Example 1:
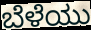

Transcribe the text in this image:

ಬೆಳೆಯು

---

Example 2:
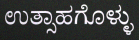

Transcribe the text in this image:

ಉತ್ಸಾಹಗೊಳ್ಳು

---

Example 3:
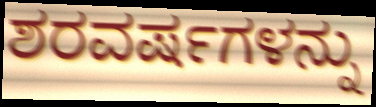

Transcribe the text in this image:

ಶರವರ್ಷಗಳನ್ನು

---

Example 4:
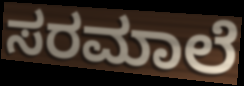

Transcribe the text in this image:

ಸರಮಾಲೆ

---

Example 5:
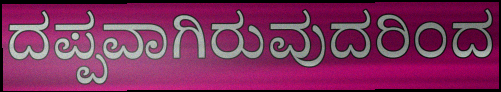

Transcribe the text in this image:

ದಪ್ಪವಾಗಿರುವುದರಿಂದ